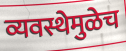
व्यवस्थेमुळेच